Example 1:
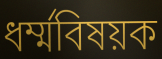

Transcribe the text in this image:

ধর্ম্মবিষয়ক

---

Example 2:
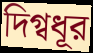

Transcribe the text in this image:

দিগ্বধূর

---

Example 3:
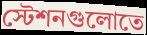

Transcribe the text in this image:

স্টেশনগুলোতে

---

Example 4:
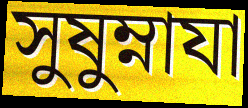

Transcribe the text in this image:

সুষুম্নাযা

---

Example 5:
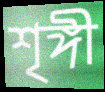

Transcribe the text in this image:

শৃঙ্গী